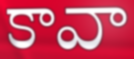
కావా